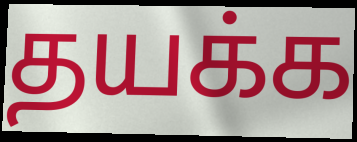
தயக்க